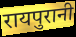
रायपुरानी